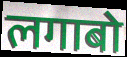
लगाबो